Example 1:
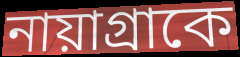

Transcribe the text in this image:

নায়াগ্রাকে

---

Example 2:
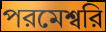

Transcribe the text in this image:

পরমেশ্বরি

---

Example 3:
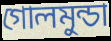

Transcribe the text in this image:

গোলমুন্ডা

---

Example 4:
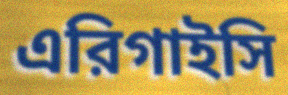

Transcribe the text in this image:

এরিগাইসি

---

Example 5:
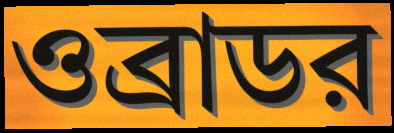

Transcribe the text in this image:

ওব্রাডর